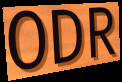
ODR